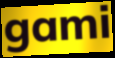
gami